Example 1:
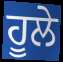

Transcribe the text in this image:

ਹੂਲੇ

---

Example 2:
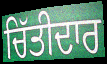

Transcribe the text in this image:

ਚਿੱਤੀਦਾਰ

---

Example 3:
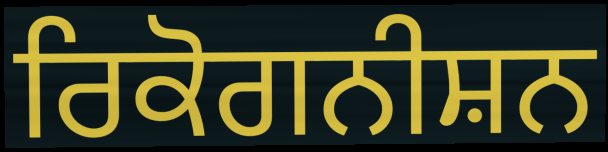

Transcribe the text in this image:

ਰਿਕੋਗਨੀਸ਼ਨ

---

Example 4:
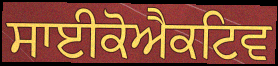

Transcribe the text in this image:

ਸਾਈਕੋਐਕਟਿਵ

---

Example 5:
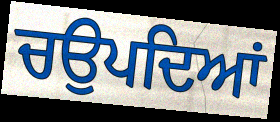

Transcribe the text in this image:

ਚਉਪਦਿਆਂ